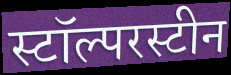
स्टॉल्परस्टीन